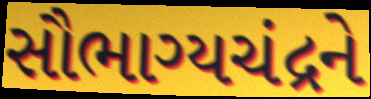
સૌભાગ્યચંદ્રને